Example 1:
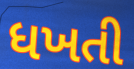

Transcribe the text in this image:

ધખતી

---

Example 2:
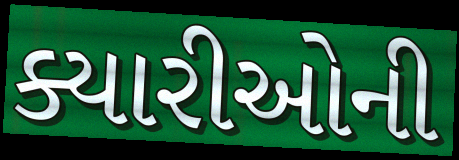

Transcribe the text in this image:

ક્યારીઓની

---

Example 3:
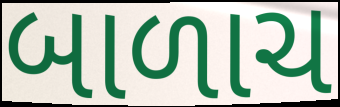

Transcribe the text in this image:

બાળાચ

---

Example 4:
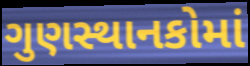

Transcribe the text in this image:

ગુણસ્થાનકોમાં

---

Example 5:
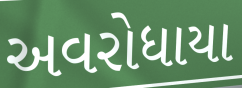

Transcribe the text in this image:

અવરોધાયા